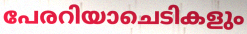
പേരറിയാചെടികളും